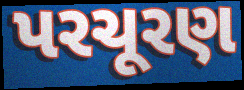
પરચૂરણ